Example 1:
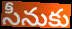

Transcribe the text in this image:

సీనుకు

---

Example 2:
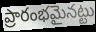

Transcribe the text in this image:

ప్రారంభమైనట్టు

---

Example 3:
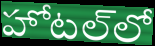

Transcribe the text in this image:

హోటల్‌లో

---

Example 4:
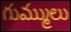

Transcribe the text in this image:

గుమ్ములు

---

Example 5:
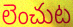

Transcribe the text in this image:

లెంచుట